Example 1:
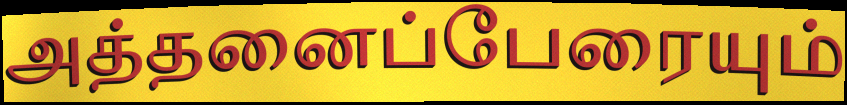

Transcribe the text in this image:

அத்தனைப்பேரையும்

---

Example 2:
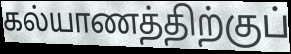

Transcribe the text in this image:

கல்யாணத்திற்குப்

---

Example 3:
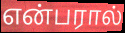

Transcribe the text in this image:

என்பரால்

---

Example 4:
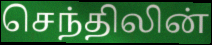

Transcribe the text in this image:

செந்திலின்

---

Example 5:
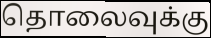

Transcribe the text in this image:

தொலைவுக்கு